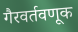
गैरवर्तवणूक